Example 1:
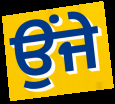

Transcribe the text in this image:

ਉਂਜੇ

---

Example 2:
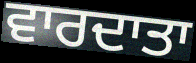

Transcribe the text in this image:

ਵਾਰਦਾਤਾ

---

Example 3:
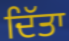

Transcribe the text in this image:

ਦਿੱਤਾ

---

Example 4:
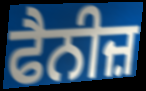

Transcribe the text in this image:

ਫੈਨੀਜ਼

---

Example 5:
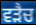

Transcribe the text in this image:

ਵੜੈਚ